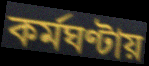
কর্মঘণ্টায়